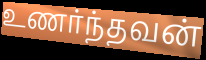
உணர்ந்தவன்